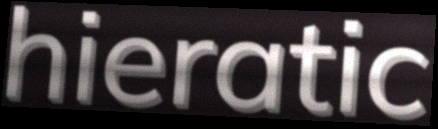
hieratic